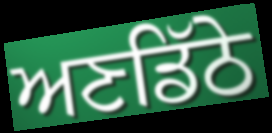
ਅਣਡਿੱਠੇ